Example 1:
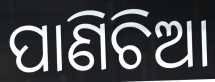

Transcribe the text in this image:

ପାଣିଚିଆ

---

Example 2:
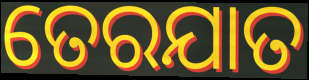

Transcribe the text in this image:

ତେରଯାତ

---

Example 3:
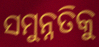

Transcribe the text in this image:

ସମୁନ୍ନତିକୁ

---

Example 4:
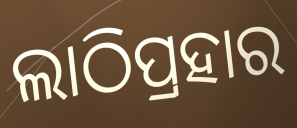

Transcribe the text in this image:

ଲାଠିପ୍ରହାର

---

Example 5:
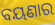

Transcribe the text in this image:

ବୟଣାର